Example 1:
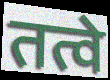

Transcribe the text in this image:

तत्वे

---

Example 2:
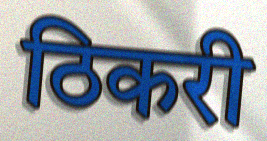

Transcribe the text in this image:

ठिकरी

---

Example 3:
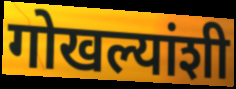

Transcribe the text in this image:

गोखल्यांशी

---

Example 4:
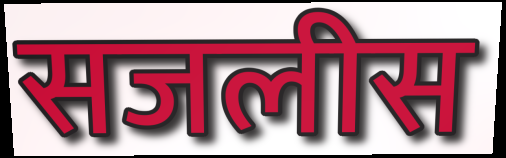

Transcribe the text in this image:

सजलीस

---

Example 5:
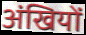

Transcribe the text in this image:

अंखियों